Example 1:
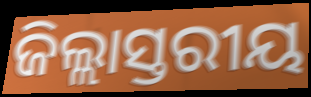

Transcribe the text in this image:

ଜିଲ୍ଲାସ୍ତରୀୟ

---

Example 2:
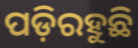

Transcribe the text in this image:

ପଡ଼ିରହୁଛି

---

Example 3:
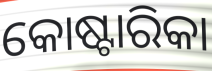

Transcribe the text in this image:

କୋଷ୍ଟାରିକା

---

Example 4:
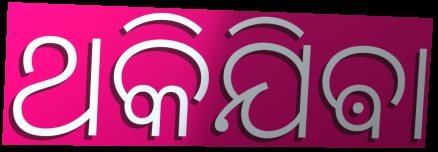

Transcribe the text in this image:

ଥକିଯିଵା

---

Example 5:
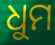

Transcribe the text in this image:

ଧୁମ